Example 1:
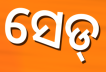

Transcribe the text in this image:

ସେଡ୍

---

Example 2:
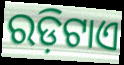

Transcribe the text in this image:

ରଡ଼ିଟାଏ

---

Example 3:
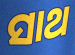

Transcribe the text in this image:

ସାଥ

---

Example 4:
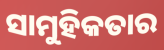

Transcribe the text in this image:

ସାମୁହିକତାର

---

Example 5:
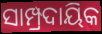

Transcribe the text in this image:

ସାମ୍ପ୍ରଦାୟିକ